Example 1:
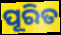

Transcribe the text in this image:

ପୂରିତ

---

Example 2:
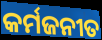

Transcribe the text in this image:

କର୍ମଜନୀତ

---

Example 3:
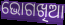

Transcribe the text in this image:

ଭୋଗଖିଆ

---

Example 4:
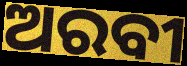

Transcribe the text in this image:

ଅରବୀ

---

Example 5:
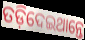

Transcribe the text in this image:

ତଡ଼ିଦେଇଥାନ୍ତେ